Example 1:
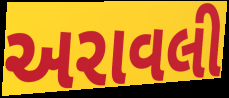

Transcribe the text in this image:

અરાવલી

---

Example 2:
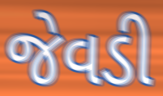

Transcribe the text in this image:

જેવડી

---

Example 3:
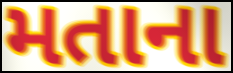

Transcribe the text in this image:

મતાના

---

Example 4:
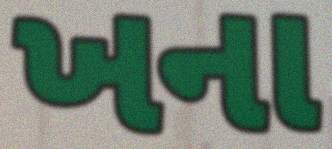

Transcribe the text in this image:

ખના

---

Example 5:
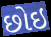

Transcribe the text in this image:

છોઇ